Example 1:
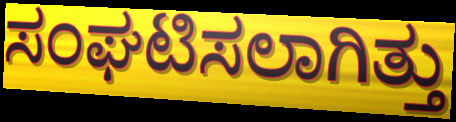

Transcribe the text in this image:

ಸಂಘಟಿಸಲಾಗಿತ್ತು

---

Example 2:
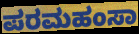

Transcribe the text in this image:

ಪರಮಹಂಸಾ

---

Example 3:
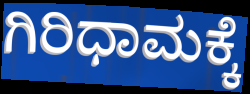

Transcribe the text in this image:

ಗಿರಿಧಾಮಕ್ಕೆ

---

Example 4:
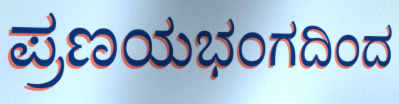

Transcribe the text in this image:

ಪ್ರಣಯಭಂಗದಿಂದ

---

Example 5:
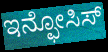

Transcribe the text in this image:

ಇನ್ಫೋಸಿಸ್